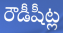
రౌడీషీట్ల